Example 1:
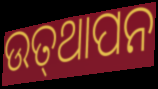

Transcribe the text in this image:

ଉତ୍‌ଥାପନ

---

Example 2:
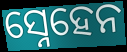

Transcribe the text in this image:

ସ୍ନେହେନ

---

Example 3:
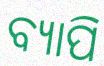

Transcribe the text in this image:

ବ୍ୟାପି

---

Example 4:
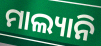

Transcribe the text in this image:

ମାଲ୍ୟାନି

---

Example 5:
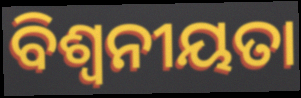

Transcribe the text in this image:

ବିଶ୍ୱନୀୟତା